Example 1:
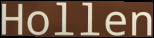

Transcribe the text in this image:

Hollen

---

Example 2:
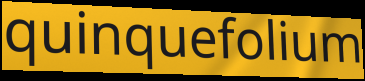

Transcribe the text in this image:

quinquefolium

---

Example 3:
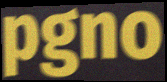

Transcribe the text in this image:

pgno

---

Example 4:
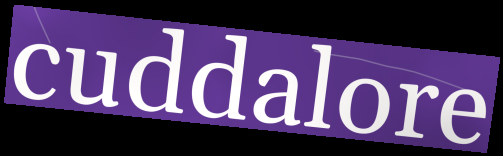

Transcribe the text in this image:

cuddalore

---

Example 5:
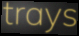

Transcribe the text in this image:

trays